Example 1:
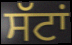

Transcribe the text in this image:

ਸੱਟਾਂ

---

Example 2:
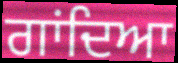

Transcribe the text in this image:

ਗਾਂਦਿਆ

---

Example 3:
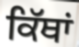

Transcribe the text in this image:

ਕਿੱਥਾਂ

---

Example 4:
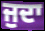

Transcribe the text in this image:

ਜੁਦਾ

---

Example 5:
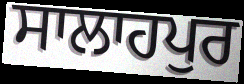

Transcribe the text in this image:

ਸਾਲਾਹਪੁਰ